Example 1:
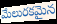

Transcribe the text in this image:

మేలురకమైన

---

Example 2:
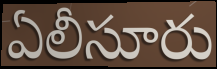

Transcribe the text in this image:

ఏలీసూరు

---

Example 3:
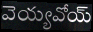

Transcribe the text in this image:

వెయ్యవోయ్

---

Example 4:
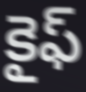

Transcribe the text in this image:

కైఫ్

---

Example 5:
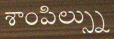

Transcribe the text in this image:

శాంపిల్స్ను